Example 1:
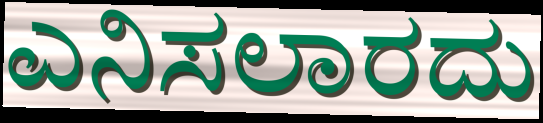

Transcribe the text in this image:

ಎನಿಸಲಾರದು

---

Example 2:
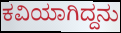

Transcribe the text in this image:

ಕವಿಯಾಗಿದ್ದನು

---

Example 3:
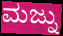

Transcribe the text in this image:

ಮಜ್ನು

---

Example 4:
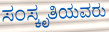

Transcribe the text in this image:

ಸಂಸ್ಕೃತಿಯವರು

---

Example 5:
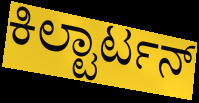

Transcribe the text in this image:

ಕಿಲ್ಟಾರ್ಟನ್